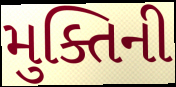
મુક્તિની